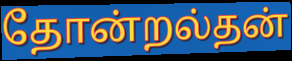
தோன்றல்தன்